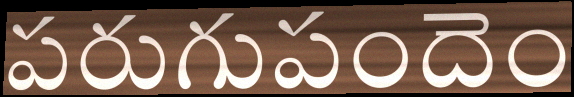
పరుగుపందెం